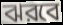
ঝরবে